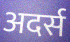
अदर्स